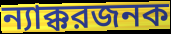
ন্যাক্করজনক